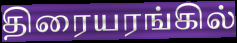
திரையரங்கில்